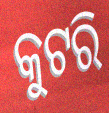
କୁଟରି